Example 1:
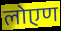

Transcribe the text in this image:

लोएण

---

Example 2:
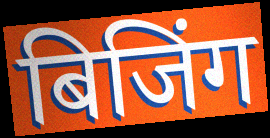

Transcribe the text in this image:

बिजिंग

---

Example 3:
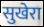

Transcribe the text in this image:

सुखेरा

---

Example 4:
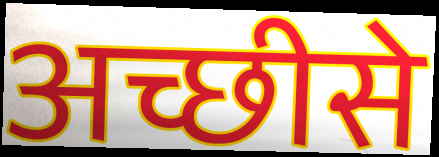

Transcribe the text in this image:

अच्छीसे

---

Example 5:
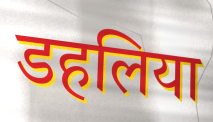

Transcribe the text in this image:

डहलिया